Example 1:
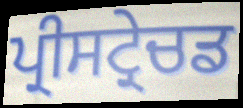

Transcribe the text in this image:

ਪ੍ਰੀਸਟ੍ਰੇਚਡ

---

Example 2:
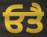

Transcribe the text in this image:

ਓਤੈ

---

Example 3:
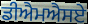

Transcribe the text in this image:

ਡੀਐਮਐਸਏ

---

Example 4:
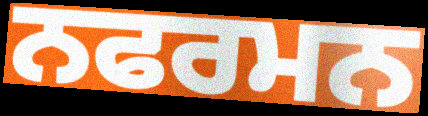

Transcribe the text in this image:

ਨਫਰਮਨ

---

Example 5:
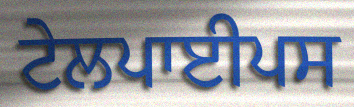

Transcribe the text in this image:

ਟੇਲਪਾਈਪਸ